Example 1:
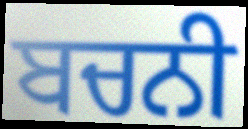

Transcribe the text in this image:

ਬਚਨੀ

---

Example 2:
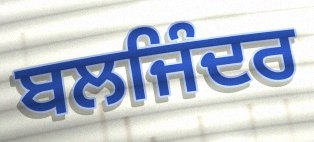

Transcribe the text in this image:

ਬਲਜਿੰਦਰ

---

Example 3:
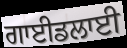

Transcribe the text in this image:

ਗਾਈਡਲਾਈ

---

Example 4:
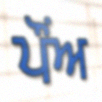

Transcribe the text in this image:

ਪੌਂਅ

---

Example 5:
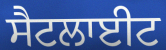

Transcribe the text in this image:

ਸੈਟਲਾਈਟ